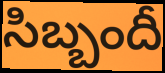
సిబ్బందీ